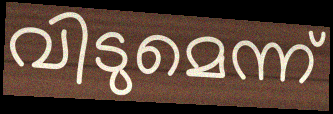
വിടുമെന്ന്